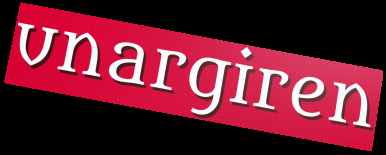
unargiren